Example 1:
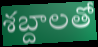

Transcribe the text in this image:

శబ్దాలతో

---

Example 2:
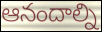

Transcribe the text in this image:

ఆనందాల్ని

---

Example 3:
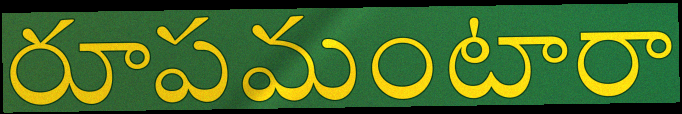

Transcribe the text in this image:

రూపమంటారా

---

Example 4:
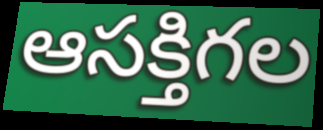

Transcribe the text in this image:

ఆసక్తిగల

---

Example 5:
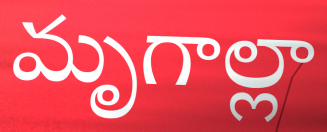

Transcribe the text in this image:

మృగాల్లా